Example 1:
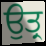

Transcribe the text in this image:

ਉਤ੍ਰ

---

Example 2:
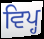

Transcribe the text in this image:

ਵਿਪ੍ਹ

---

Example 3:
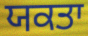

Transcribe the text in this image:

ਯਕਤਾ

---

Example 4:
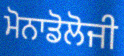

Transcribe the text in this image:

ਮੋਨਾਡੋਲੋਜੀ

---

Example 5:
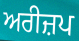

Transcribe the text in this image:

ਅਰੀਜ਼ਪ